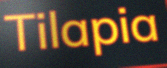
Tilapia